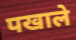
पखाले